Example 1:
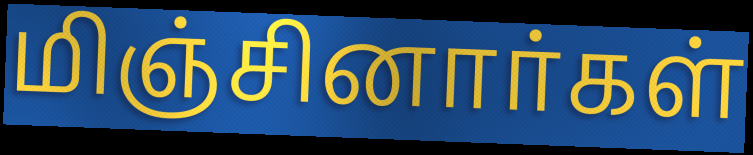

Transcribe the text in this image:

மிஞ்சினார்கள்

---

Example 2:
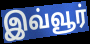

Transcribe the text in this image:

இவ்வூர்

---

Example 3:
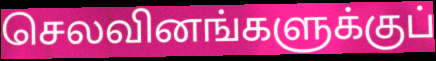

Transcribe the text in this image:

செலவினங்களுக்குப்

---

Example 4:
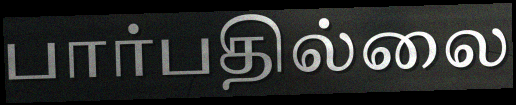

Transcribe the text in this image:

பார்பதில்லை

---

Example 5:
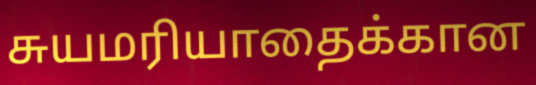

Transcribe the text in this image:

சுயமரியாதைக்கான